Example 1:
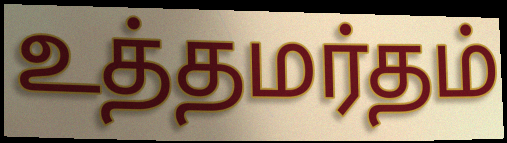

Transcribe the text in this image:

உத்தமர்தம்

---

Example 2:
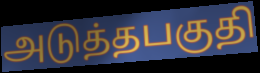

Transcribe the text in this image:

அடுத்தபகுதி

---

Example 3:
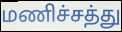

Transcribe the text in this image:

மணிச்சத்து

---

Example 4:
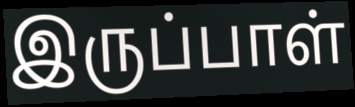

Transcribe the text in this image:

இருப்பாள்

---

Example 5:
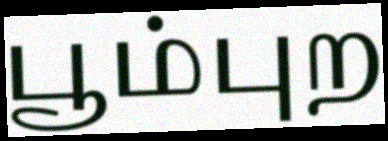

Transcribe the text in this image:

பூம்புற